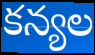
కన్యల